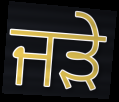
ਜੜੇ